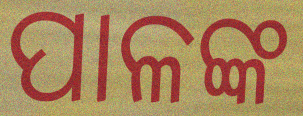
ପାଳଙ୍କ